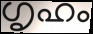
ഗൃഹം